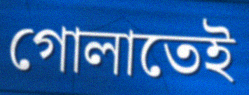
গোলাতেই